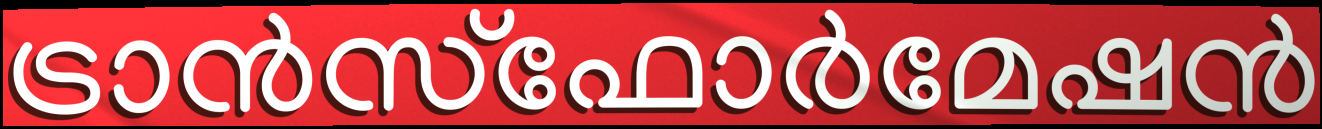
ട്രാൻസ്ഫോർമേഷൻ